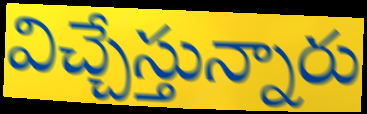
విచ్చేస్తున్నారు